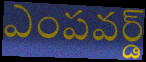
ఎంపవర్డ్